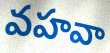
వహవా